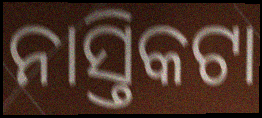
ନାସ୍ତିକଟା